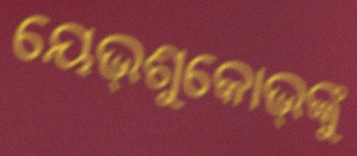
ୟେଭ୍‌ଶୁକୋଭ୍‌ଙ୍କୁ